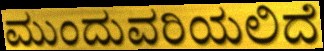
ಮುಂದುವರಿಯಲಿದೆ